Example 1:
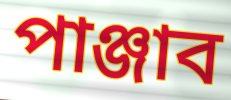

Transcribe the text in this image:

পাঞ্জাব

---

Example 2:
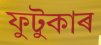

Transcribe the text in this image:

ফুটুকাৰ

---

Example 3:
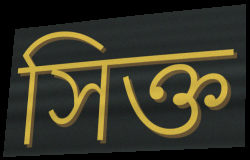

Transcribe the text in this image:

সিক্ত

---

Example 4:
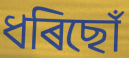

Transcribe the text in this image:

ধৰিছোঁ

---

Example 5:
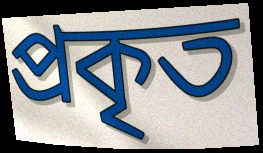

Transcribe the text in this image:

প্ৰকৃত